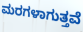
ಮರಗಳಾಗುತ್ತವೆ